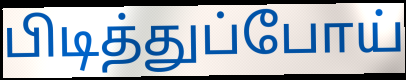
பிடித்துப்போய்